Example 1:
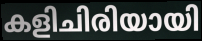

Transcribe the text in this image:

കളിചിരിയായി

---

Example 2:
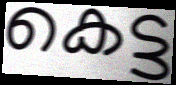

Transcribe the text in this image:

കെട്ട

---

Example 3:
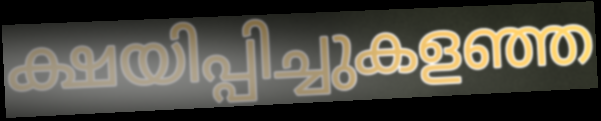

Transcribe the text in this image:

ക്ഷയിപ്പിച്ചുകളഞ്ഞ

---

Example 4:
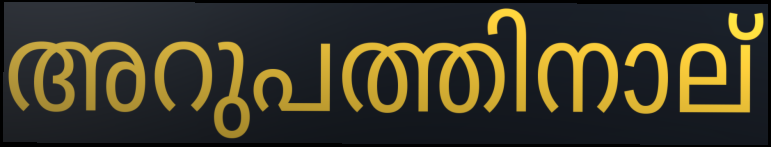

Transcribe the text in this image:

അറുപത്തിനാല്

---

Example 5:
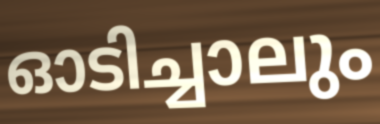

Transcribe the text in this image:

ഓടിച്ചാലും